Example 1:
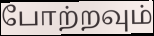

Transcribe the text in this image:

போற்றவும்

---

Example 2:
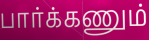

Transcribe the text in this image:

பார்க்கணும்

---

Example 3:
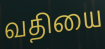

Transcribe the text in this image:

வதியை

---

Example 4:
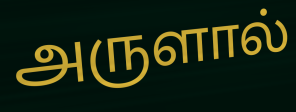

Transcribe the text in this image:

அருளால்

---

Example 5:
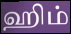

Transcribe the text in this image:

ஹிம்